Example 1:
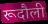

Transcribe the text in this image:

रूदौली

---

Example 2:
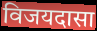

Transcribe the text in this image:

विजयदासा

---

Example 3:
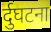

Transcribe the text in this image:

र्दुघटना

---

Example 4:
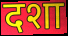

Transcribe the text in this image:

दशा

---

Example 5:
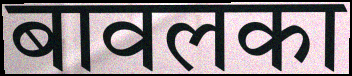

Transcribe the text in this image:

बावलका